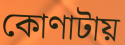
কোণাটায়